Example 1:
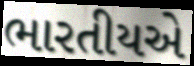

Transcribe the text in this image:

ભારતીયએ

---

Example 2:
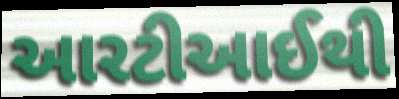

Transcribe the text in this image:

આરટીઆઈથી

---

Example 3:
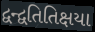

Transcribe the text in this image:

દ્વન્દ્વતિતિક્ષયા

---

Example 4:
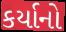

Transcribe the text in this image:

કર્યાનો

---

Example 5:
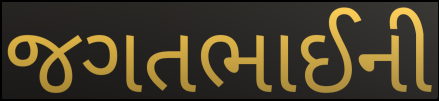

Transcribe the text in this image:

જગતભાઈની